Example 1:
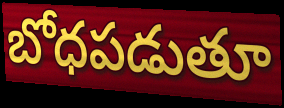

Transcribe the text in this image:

బోధపడుతూ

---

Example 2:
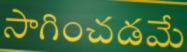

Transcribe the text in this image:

సాగించడమే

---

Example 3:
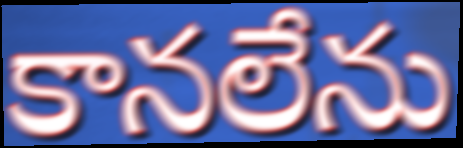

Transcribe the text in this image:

కానలేను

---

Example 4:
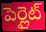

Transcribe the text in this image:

పెర్లైట్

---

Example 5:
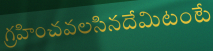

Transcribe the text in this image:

గ్రహించవలసినదేమిటంటే